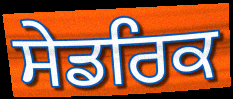
ਸੇਡਰਿਕ